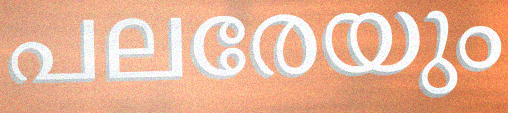
പലരേയും